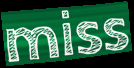
miss